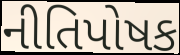
નીતિપોષક